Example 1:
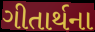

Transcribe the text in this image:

ગીતાર્થના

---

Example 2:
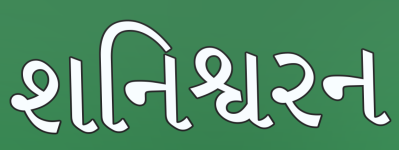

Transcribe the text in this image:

શનિશ્વરન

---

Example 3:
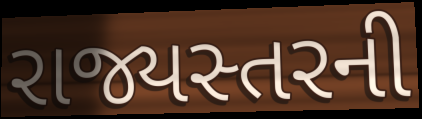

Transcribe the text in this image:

રાજ્યસ્તરની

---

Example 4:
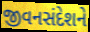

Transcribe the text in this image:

જીવનસંદેશને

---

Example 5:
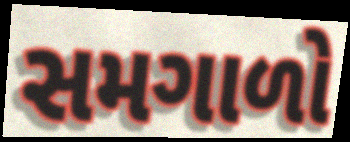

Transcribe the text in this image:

સમગાળો